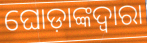
ଘୋଡ଼ାଙ୍କଦ୍ୱାରା